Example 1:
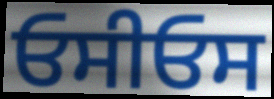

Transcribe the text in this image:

ਓਸੀਓਸ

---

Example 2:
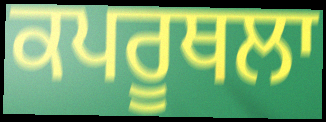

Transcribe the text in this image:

ਕਪਰੂਥਲਾ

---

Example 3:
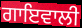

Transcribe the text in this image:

ਗਾਇਵਾਲੀ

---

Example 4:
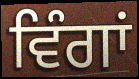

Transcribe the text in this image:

ਵਿੰਗਾਂ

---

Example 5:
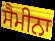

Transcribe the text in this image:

ਸੈਮੀਨਾ